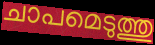
ചാപമെടുത്തു